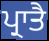
ਪ੍ਰਾਤੈ